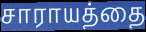
சாராயத்தை